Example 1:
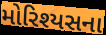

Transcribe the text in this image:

મોરિશ્યસના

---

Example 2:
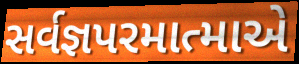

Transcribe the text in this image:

સર્વજ્ઞપરમાત્માએ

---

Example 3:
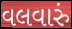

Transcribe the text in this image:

વલવારું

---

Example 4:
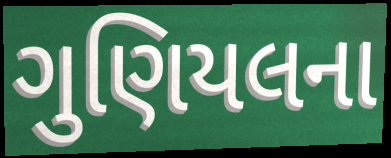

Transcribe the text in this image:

ગુણિયલના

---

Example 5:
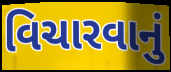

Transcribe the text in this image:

વિચારવાનું